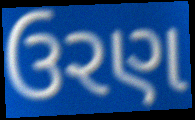
ઉરણ